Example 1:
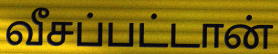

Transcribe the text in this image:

வீசப்பட்டான்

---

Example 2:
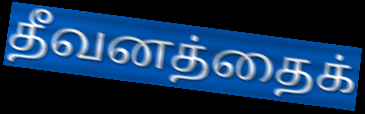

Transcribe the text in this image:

தீவனத்தைக்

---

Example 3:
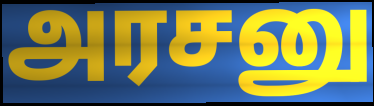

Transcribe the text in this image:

அரசனு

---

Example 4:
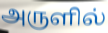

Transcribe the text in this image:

அருளில்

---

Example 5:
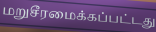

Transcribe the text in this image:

மறுசீரமைக்கப்பட்டது